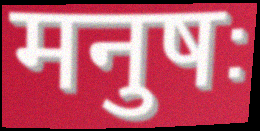
मनुषः